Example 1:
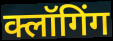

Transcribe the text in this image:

क्लॉगिंग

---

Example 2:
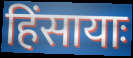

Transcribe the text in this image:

हिंसायाः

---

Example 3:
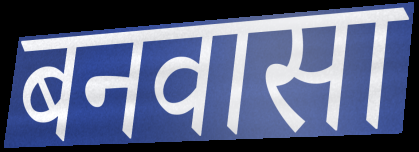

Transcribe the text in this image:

बनवासा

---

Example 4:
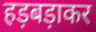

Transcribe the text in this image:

हड़बड़ाकर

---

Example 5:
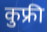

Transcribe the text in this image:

कुफ्री